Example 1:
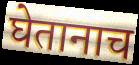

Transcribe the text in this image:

घेतानाच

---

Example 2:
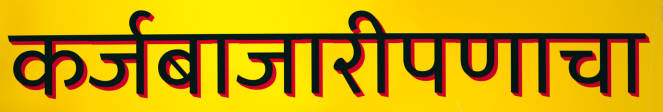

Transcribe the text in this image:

कर्जबाजारीपणाचा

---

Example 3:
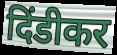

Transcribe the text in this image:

दिंडीकर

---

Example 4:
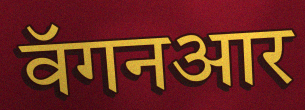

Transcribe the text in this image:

वॅगनआर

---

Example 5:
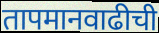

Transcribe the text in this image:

तापमानवाढीची